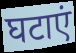
घटाएं